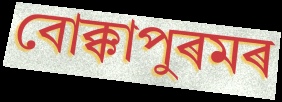
বোক্কাপুৰমৰ